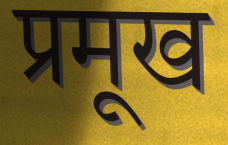
प्रमूख